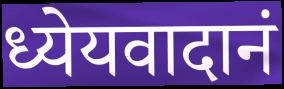
ध्येयवादानं